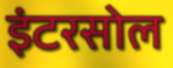
इंटरसोल